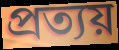
প্রত্যয়